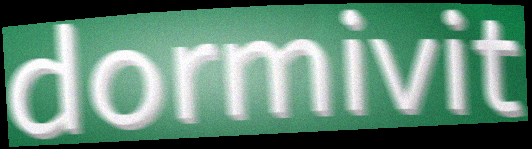
dormivit